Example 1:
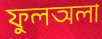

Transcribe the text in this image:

ফুলঅলা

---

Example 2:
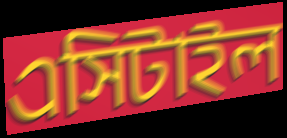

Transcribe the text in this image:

এসিটাইল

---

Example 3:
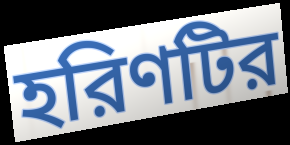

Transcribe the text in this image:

হরিণটির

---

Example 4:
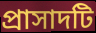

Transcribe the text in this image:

প্রাসাদটি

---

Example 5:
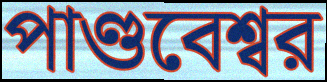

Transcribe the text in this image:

পাণ্ডবেশ্বর